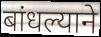
बांधल्याने